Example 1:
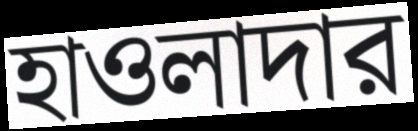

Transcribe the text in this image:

হাওলাদার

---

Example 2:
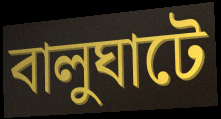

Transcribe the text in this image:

বালুঘাটে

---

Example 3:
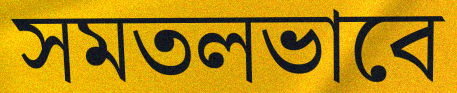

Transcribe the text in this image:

সমতলভাবে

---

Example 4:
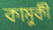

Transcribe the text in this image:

কামুকী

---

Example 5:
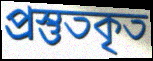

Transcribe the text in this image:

প্রস্তুতকৃত